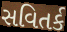
સવિતર્ક